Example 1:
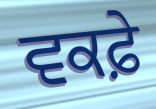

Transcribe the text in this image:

ਵਕਫ਼ੇ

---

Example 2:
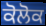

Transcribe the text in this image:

ਕੋਲੋਕ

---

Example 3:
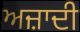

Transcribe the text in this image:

ਅਜ਼ਾਦੀ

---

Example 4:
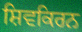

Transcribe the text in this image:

ਸ਼ਿਵਕਿਰਨ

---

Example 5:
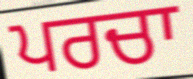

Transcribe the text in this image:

ਪਰਚਾ